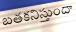
బతకనిస్తుందా